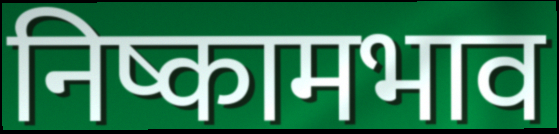
निष्कामभाव